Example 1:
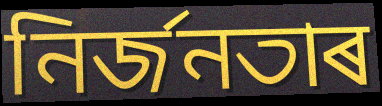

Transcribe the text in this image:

নিৰ্জনতাৰ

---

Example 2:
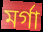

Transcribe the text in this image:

মৰ্গা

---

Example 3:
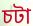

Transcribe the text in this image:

চটা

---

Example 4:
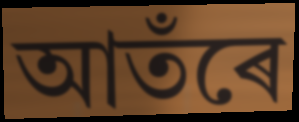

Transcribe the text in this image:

আতঁৰে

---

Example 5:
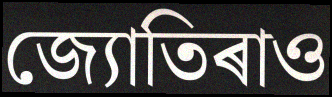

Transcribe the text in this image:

জ্যোতিৰাও